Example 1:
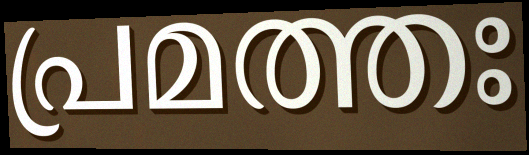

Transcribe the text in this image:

പ്രമത്തഃ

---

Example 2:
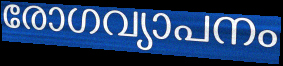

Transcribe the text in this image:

രോഗവ്യാപനം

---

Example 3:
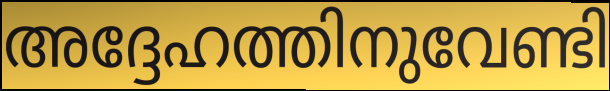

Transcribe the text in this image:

അദ്ദേഹത്തിനുവേണ്ടി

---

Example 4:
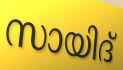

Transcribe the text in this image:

സായിദ്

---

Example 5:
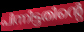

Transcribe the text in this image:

പിന്നിട്ടതിന്റെ